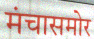
मंचासमोर